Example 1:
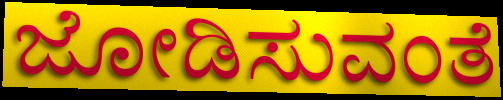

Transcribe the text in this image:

ಜೋಡಿಸುವಂತೆ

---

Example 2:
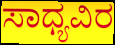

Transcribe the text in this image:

ಸಾಧ್ಯವಿರ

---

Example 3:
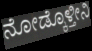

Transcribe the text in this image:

ನೋಡ್ಕೊಳ್ತೀನಿ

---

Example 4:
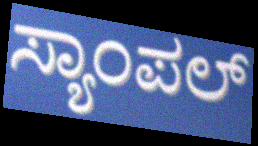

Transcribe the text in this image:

ಸ್ಯಾಂಪಲ್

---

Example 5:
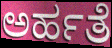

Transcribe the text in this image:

ಅರ್ಹತೆ